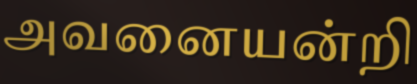
அவனையன்றி